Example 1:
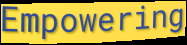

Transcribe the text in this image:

Empowering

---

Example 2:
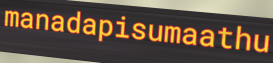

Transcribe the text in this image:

manadapisumaathu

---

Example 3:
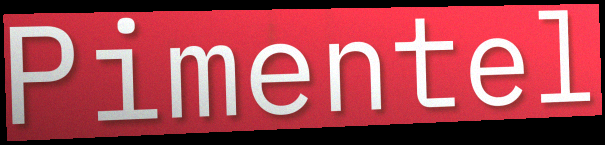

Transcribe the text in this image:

Pimentel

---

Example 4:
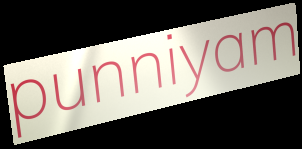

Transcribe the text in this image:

punniyam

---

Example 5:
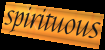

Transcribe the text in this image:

spirituous